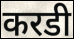
करडी